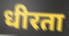
धीरता